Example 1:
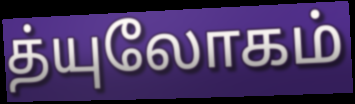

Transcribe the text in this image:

த்யுலோகம்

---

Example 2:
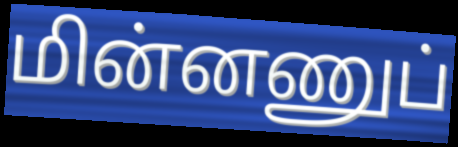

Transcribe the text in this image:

மின்னணுப்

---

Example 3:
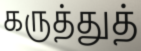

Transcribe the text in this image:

கருத்துத்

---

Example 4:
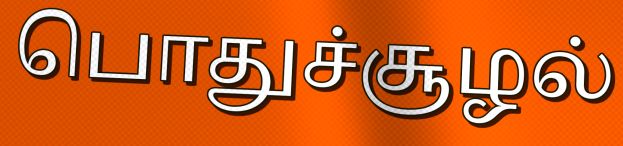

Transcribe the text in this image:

பொதுச்சூழல்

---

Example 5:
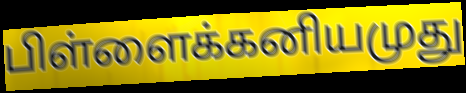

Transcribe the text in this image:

பிள்ளைக்கனியமுது